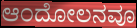
ಆಂದೋಲನವೂ